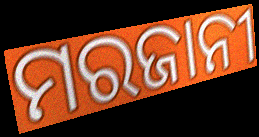
ମରଜାନୀ